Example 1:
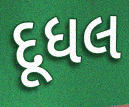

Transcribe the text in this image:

દૂધલ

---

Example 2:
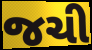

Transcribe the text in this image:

જચી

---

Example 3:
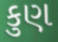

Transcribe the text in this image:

કુણ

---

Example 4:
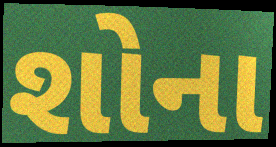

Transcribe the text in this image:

શોના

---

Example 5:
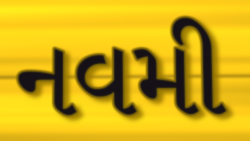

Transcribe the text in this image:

નવમી